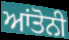
ਆਂਤੋਨੀ